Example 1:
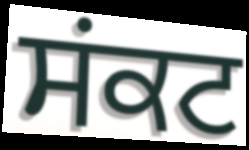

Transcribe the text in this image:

ਸਂਕਟ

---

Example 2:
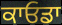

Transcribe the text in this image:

ਕਾਓਡਾ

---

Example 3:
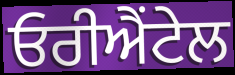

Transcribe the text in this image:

ਓਰੀਐਂਟੇਲ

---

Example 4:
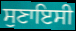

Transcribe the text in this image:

ਸੁਣਾਇਸੀ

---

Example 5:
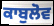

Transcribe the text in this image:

ਕਾਬੁਲੋਵ